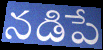
నడిపే